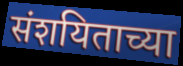
संशयिताच्या